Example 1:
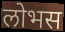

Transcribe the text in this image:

लोभस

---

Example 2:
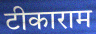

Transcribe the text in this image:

टीकाराम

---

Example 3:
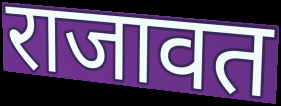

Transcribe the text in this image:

राजावत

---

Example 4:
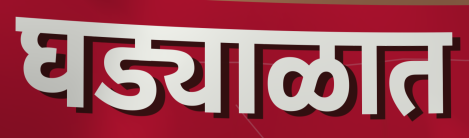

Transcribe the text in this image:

घड्याळात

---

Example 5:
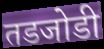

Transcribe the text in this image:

तडजोडी